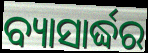
ବ୍ୟାସାର୍ଦ୍ଧର